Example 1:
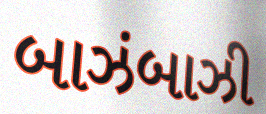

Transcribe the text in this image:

બાઝંબાઝી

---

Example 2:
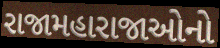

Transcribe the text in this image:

રાજામહારાજાઓનો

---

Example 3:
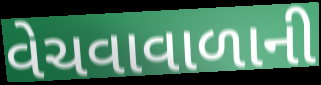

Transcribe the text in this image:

વેચવાવાળાની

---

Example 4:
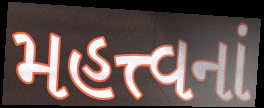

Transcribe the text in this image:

મહત્ત્વનાં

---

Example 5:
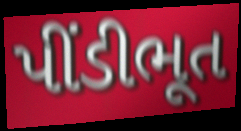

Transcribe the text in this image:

પીંડીભૂત